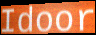
Idoor